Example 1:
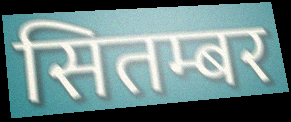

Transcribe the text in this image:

सितम्‍बर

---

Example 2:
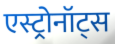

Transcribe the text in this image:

एस्ट्रोनॉट्स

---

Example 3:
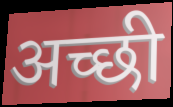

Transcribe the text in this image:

अच्छी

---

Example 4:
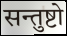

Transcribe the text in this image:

सन्तुष्टो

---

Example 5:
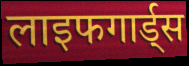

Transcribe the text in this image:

लाइफगार्ड्स